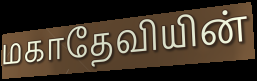
மகாதேவியின்